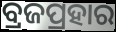
ବ୍ରଜପ୍ରହାର